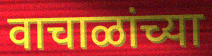
वाचाळांच्या